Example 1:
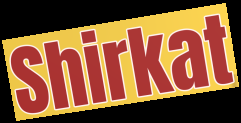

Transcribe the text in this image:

Shirkat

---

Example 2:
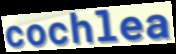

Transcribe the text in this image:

cochlea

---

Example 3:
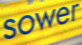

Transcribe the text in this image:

sower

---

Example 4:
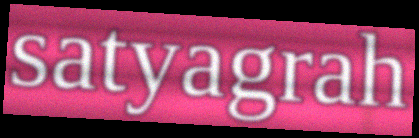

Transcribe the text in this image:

satyagrah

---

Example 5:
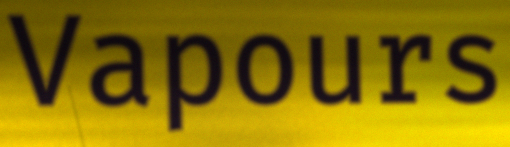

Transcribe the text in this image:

Vapours